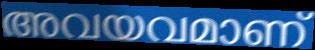
അവയവമാണ്